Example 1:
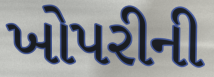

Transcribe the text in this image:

ખોપરીની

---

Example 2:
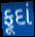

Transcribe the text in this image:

ફૂદાં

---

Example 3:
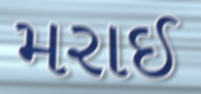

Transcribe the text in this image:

મરાઈ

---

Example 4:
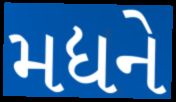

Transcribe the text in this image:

મદ્યને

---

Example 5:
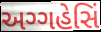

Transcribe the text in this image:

અગ્ગહેસિં